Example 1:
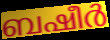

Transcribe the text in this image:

ബഷീർ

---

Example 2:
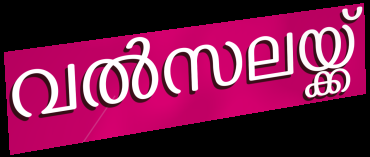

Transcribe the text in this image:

വൽസലയ്ക്ക്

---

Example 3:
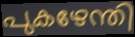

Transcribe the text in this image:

പുകഴേന്തി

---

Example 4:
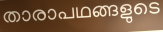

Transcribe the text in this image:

താരാപഥങ്ങളുടെ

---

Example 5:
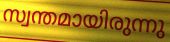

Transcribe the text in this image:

സ്വന്തമായിരുന്നു